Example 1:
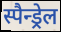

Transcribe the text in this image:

स्पैन्ड्रेल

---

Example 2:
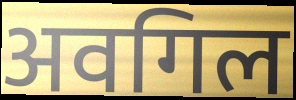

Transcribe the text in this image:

अवगिल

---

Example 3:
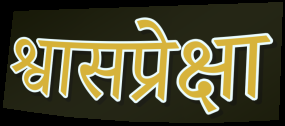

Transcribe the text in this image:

श्वासप्रेक्षा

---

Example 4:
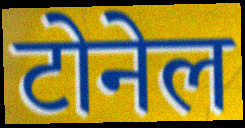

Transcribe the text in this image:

टोनेल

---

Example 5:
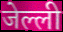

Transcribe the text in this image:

जेल्ली